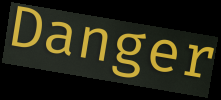
Danger